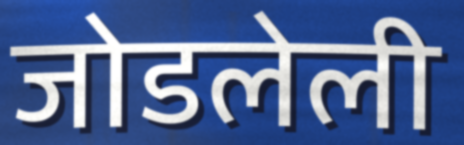
जोडलेली